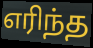
எரிந்த